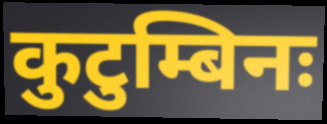
कुटुम्बिनः